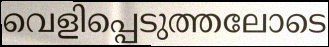
വെളിപ്പെടുത്തലോടെ